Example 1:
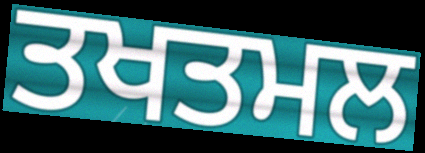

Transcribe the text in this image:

ਤਖਤਮਲ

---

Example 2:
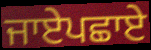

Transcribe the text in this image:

ਜਾਏਪਛਾਏ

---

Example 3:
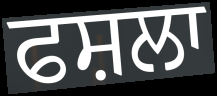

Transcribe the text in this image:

ਫਸ਼ਲਾ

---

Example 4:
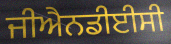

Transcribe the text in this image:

ਜੀਐਨਡੀਈਸੀ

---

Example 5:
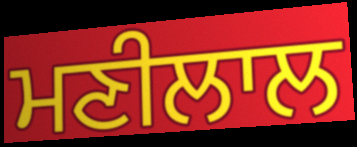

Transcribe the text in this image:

ਮਣੀਲਾਲ